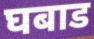
घबाड